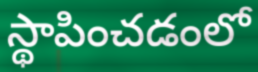
స్థాపించడంలో